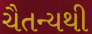
ચૈતન્યથી